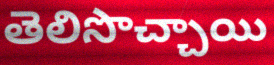
తెలిసొచ్చాయి